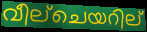
വീല്ചെയറില്